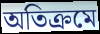
অতিক্ৰমে